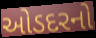
ઓડદરનો